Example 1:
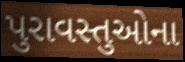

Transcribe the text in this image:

પુરાવસ્તુઓના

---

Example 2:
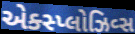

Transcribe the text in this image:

એક્સ્પ્લોઝિવ્સ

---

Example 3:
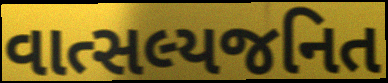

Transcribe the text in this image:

વાત્સલ્યજનિત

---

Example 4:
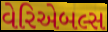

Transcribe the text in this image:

વેરિએબલ્સ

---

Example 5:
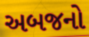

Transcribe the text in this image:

અબજનો